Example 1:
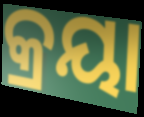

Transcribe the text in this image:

କ୍ରୟା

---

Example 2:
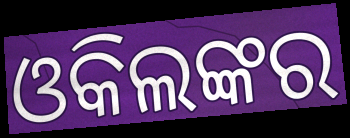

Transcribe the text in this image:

ଓକିଲଙ୍କର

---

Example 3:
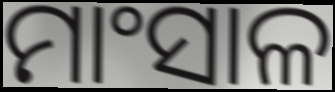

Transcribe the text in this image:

ମାଂସାଳ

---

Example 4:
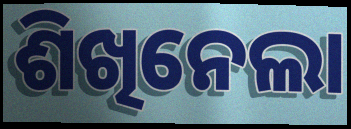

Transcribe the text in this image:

ଶିଖିନେଲା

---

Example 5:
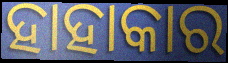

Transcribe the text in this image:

ହାହାକାର